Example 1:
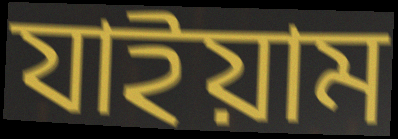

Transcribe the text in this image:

যাইয়াম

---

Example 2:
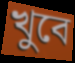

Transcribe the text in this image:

খুবে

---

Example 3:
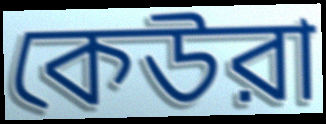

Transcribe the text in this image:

কেউরা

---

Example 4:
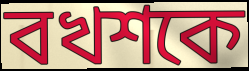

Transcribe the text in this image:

বখশকে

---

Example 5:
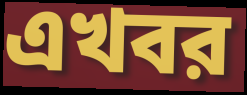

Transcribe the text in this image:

এখবর